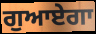
ਗੁਆਏਗਾ